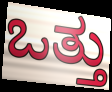
ಒತ್ತು